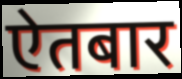
ऐतबार